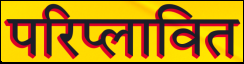
परिप्लावित